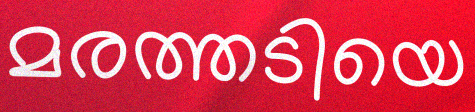
മരത്തടിയെ